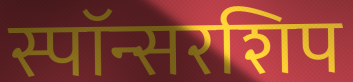
स्पॉन्सरशिप